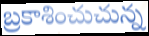
బ్రకాశించుచున్న